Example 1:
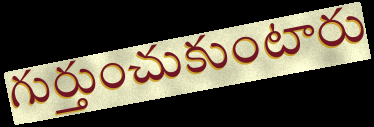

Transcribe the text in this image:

గుర్తుంచుకుంటారు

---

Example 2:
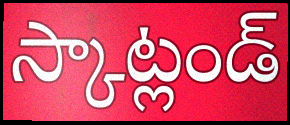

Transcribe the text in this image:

స్కాట్లండ్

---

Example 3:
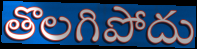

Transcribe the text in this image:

తొలగిపోదు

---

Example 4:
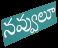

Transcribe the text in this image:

నవ్వులూ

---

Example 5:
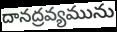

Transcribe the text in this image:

దానద్రవ్యమును